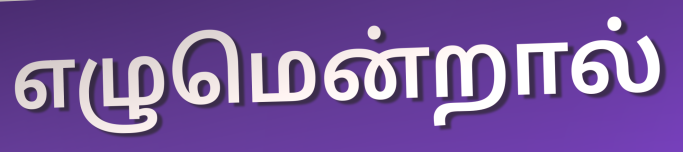
எழுமென்றால்